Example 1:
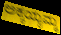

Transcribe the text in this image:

ಅಕ್ಕಯ್ಯಮ್ಮ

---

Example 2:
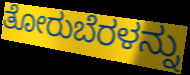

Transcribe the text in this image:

ತೋರುಬೆರಳನ್ನು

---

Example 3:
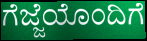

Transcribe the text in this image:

ಗೆಜ್ಜೆಯೊಂದಿಗೆ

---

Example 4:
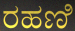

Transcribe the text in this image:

ರಹಣಿ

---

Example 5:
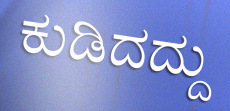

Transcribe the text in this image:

ಕುಡಿದದ್ದು